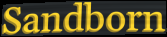
Sandborn